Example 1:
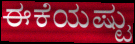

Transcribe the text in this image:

ಈಕೆಯಷ್ಟು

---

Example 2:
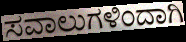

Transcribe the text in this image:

ಸವಾಲುಗಳಿಂದಾಗಿ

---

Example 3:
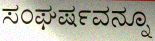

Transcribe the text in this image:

ಸಂಘರ್ಷವನ್ನೂ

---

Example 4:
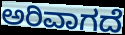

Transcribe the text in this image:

ಅರಿವಾಗದೆ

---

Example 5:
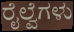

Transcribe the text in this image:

ರೈಲ್ವೆಗಳು